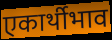
एकार्थीभाव